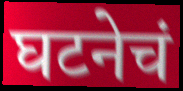
घटनेचं